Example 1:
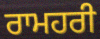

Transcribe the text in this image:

ਰਾਮਹਰੀ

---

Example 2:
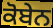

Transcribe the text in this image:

ਕੋਬੇਨ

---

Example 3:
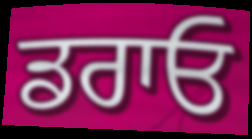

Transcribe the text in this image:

ਡਰਾਓ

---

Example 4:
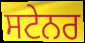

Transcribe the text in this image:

ਸਟੇਨਰ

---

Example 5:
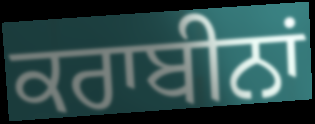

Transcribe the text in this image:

ਕਰਾਬੀਨਾਂ